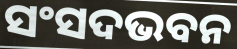
ସଂସଦଭବନ